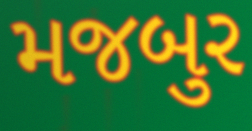
મજબુર